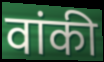
वांकी